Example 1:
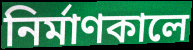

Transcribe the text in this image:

নির্মাণকালে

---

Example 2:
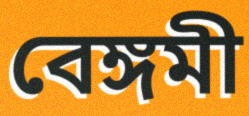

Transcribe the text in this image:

বেঙ্গমী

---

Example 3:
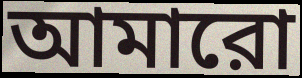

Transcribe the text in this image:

আমারো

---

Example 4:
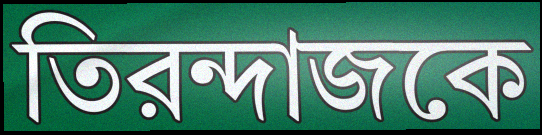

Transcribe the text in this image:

তিরন্দাজকে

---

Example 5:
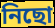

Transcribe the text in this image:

নিছো